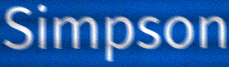
Simpson